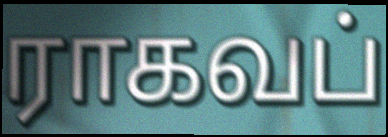
ராகவப்